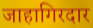
जाहागिरदार